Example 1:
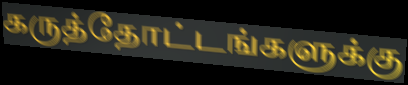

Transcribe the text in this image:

கருத்தோட்டங்களுக்கு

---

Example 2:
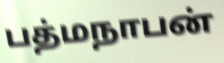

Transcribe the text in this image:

பத்மநாபன்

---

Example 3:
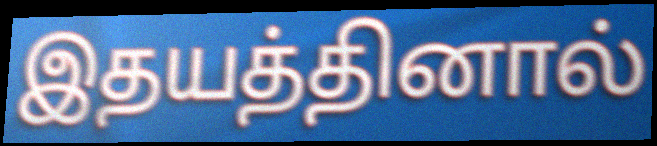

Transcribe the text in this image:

இதயத்தினால்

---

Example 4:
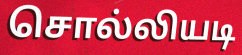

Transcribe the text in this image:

சொல்லியடி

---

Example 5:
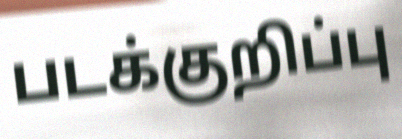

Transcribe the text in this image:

படக்குறிப்பு